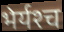
भेर्यश्च